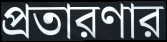
প্রতারণার